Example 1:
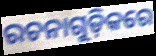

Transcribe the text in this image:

ରଚନାଗୁଡ଼ିକରେ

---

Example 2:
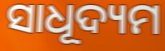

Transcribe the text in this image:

ସାଧୂଦ୍ୟମ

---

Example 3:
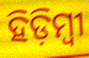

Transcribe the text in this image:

ହିଡ଼ିମ୍ବୀ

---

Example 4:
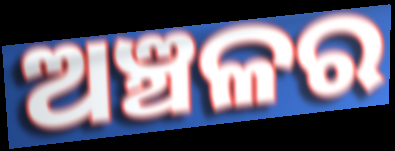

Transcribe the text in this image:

ଅଞ୍ଚଳର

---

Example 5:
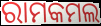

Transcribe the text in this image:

ରାମକମଲ